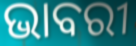
ଭାବରୀ